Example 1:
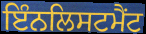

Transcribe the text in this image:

ਇੰਨਲਿਸਟਮੈਂਟ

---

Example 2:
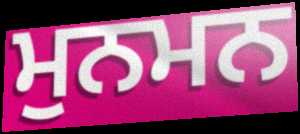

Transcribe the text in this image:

ਮੁਨਮਨ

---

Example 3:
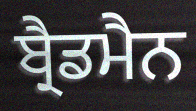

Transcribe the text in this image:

ਬ੍ਰੈਡਮੈਨ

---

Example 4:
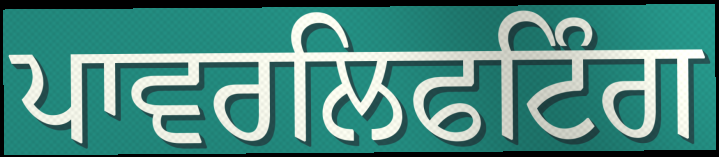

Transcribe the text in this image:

ਪਾਵਰਲਿਫਟਿੰਗ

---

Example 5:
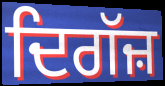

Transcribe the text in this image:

ਦਿਗੱਜ਼